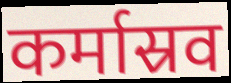
कर्मास्रव